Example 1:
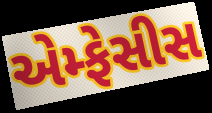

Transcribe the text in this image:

એમ્ફેસીસ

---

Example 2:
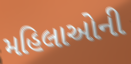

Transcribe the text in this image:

મહિલાઓની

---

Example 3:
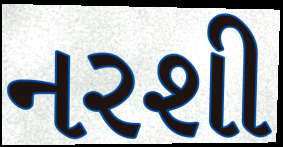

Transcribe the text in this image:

નરશી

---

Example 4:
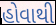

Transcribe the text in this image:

હોવાથી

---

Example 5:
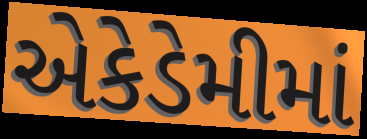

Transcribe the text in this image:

એકેડેમીમાં